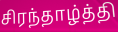
சிரந்தாழ்த்தி